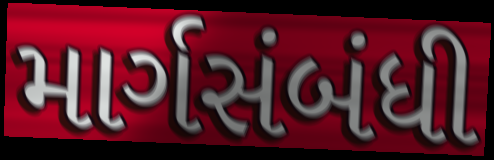
માર્ગસંબંધી